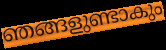
ഞങ്ങളുണ്ടാകും